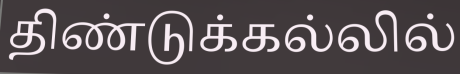
திண்டுக்கல்லில்